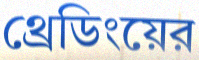
থ্রেডিংয়ের